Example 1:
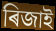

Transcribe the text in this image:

ৰিজাই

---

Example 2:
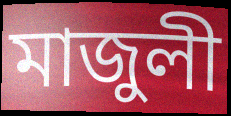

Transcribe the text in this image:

মাজুলী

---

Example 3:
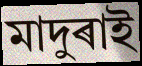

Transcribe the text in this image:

মাদুৰাই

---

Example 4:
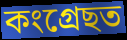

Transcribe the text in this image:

কংগ্ৰেছত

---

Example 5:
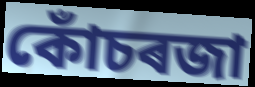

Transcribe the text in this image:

কোঁচৰজা